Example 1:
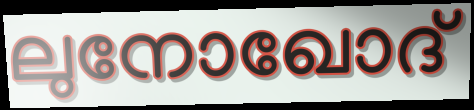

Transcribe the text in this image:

ലുനോഖോദ്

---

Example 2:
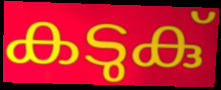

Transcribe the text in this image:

കടുകു്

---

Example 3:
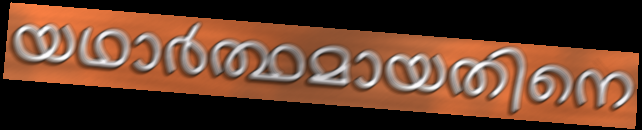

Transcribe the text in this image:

യഥാർത്ഥമായതിനെ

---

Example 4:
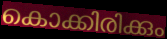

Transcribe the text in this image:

കൊക്കിരിക്കും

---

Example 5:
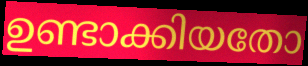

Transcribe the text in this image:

ഉണ്ടാക്കിയതോ